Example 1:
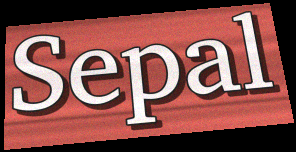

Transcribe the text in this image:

Sepal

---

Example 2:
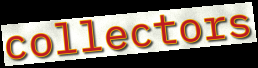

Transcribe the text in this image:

collectors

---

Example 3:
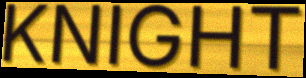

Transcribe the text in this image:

KNIGHT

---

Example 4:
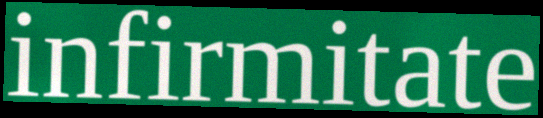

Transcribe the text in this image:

infirmitate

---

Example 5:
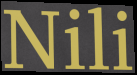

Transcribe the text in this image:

Nili